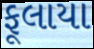
ફૂલાયા